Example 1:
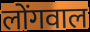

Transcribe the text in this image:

लोंगवाल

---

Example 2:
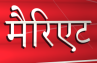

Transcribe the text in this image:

मैरिएट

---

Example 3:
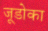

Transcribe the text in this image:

जूडोका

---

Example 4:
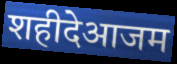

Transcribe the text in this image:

शहीदेआजम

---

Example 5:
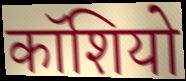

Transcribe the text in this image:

कॉशियो